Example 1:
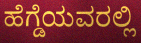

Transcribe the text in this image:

ಹೆಗ್ಡೆಯವರಲ್ಲಿ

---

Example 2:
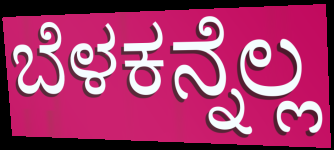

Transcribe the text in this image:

ಬೆಳಕನ್ನೆಲ್ಲ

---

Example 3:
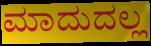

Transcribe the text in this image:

ಮಾದುದಲ್ಲ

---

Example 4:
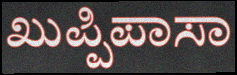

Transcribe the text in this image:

ಖುಪ್ಪಿಪಾಸಾ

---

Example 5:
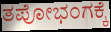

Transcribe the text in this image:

ತಪೋಭಂಗಕ್ಕೆ